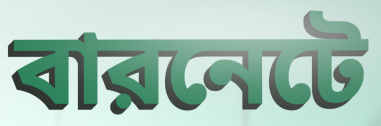
বারনেটে